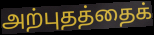
அற்புதத்தைக்